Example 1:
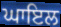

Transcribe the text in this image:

ਘਾਇਲ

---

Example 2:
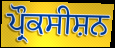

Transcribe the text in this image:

ਪ੍ਰੌਕਸੀਸ਼ਨ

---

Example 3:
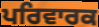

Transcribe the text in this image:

ਪਰਿਵਾਰਕ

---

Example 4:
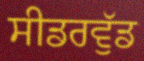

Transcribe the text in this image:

ਸੀਡਰਵੁੱਡ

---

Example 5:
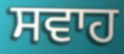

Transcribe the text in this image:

ਸਵਾਹ